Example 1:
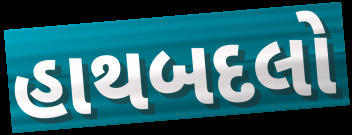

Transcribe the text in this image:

હાથબદલો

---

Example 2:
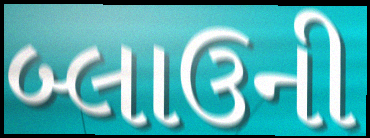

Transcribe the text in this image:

બ્લાઉની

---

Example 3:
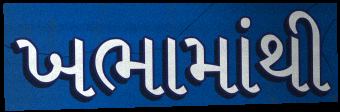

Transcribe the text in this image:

ખભામાંથી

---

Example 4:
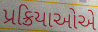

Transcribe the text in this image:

પ્રક્રિયાઓએ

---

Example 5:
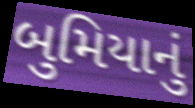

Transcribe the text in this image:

બુમિયાનું